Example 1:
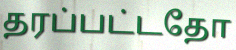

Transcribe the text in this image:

தரப்பட்டதோ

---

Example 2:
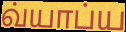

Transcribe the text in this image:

வ்யாப்ய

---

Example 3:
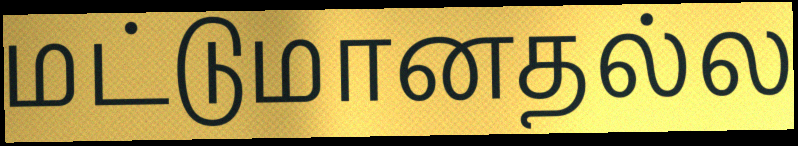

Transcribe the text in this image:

மட்டுமானதல்ல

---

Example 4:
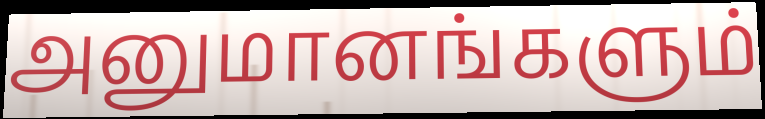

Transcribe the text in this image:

அனுமானங்களும்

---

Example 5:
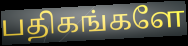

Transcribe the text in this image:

பதிகங்களே